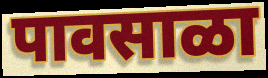
पावसाळा